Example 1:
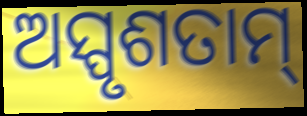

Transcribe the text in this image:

ଅସ୍ପୃଶତାମ୍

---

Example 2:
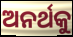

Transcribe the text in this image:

ଅନର୍ଥକୁ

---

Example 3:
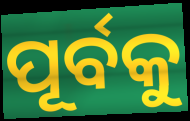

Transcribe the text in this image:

ପୂର୍ବକୁ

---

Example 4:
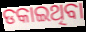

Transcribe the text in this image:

ଡକାଇଥିବା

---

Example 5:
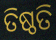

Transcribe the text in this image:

ତିଷ୍ଠତି